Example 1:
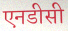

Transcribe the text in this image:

एनडीसी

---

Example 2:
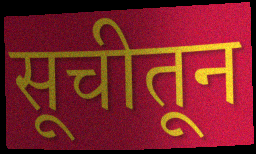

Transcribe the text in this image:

सूचीतून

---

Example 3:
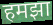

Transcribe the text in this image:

हमझा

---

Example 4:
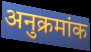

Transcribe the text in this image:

अनुक्रमांक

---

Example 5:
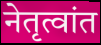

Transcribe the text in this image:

नेतृत्वांत